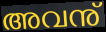
അവനു്